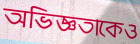
অভিজ্ঞতাকেও